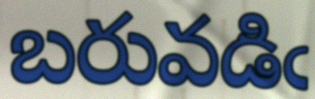
బరువడిఁ